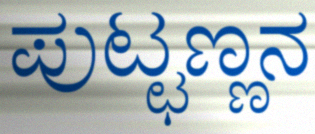
ಪುಟ್ಟಣ್ಣನ